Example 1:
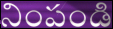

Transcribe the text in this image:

నింపండి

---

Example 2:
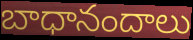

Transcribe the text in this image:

బాధానందాలు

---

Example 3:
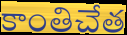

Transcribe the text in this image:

కాంతిచేత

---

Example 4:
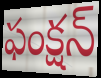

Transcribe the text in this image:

ఫంక్షన్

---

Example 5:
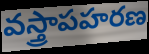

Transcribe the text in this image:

వస్త్రాపహరణ